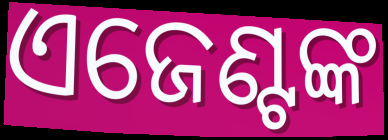
ଏଜେଣ୍ଟଙ୍କ